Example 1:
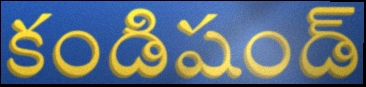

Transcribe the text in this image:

కండిషండ్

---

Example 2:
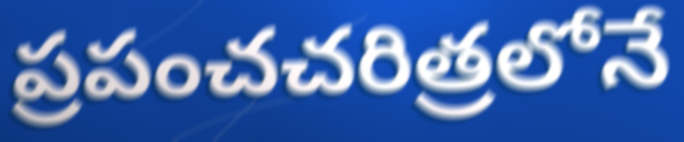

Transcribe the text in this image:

ప్రపంచచరిత్రలోనే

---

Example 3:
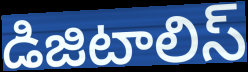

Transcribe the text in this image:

డిజిటాలిస్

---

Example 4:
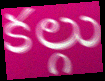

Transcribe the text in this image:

కల్గు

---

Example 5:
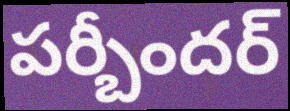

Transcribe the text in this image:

పర్బీందర్